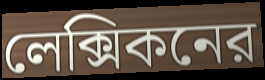
লেক্সিকনের